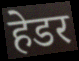
हेडर